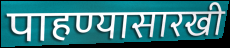
पाहण्यासारखी